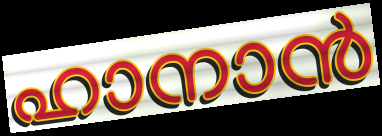
ഹാനാൻ